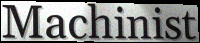
Machinist